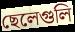
ছেলেগুলি